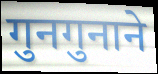
गुनगुनाने